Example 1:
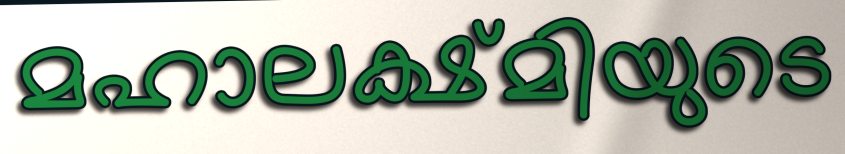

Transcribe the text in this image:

മഹാലക്ഷ്മിയുടെ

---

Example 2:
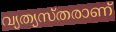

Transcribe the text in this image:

വ്യത്യസ്തരാണ്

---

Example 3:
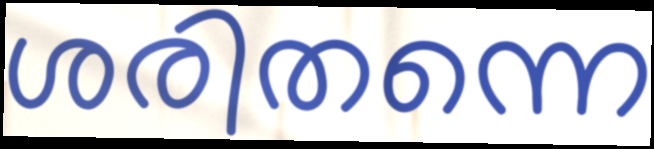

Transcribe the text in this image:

ശരിതന്നെ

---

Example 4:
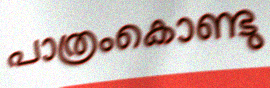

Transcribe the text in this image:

പാത്രംകൊണ്ടു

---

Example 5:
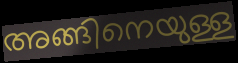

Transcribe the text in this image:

അങ്ങിനെയുള്ള